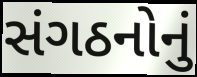
સંગઠનોનું